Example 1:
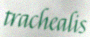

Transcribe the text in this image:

trachealis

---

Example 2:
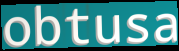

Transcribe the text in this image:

obtusa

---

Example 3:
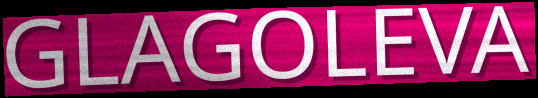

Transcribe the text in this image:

GLAGOLEVA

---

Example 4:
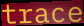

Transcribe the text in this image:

trace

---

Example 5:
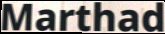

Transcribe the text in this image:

Marthad